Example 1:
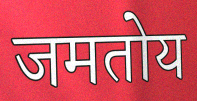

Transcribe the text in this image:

जमतोय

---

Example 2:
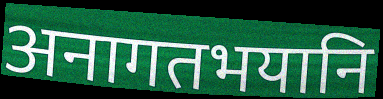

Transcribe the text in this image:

अनागतभयानि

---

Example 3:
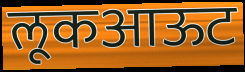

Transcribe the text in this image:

लूकआऊट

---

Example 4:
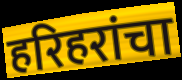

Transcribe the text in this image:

हरिहरांचा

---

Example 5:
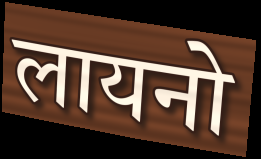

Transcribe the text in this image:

लायनो